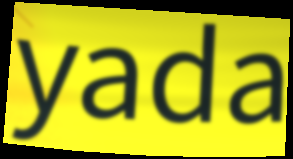
yada